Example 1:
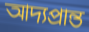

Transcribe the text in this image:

আদ্যপ্রান্ত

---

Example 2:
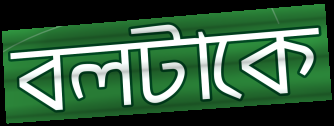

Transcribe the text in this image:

বলটাকে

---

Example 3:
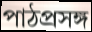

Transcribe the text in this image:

পাঠপ্রসঙ্গ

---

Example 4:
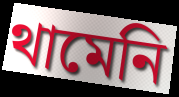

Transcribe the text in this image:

থামেনি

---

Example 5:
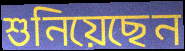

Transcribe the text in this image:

শুনিয়েছেন